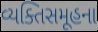
વ્યક્તિસમૂહના